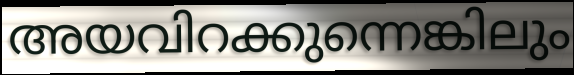
അയവിറക്കുന്നെങ്കിലും